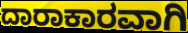
ದಾರಾಕಾರವಾಗಿ